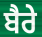
ਬੈਰੇ